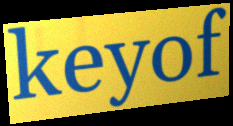
keyof